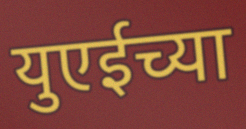
युएईच्या